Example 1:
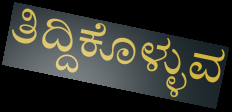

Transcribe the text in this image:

ತಿದ್ದಿಕೊಳ್ಳುವ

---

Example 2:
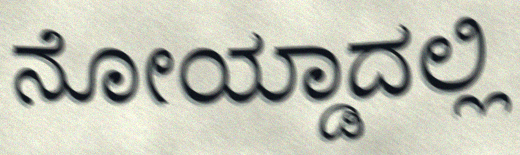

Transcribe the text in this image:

ನೋಯ್ಡಾದಲ್ಲಿ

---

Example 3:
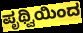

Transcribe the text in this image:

ಪೃಥ್ವಿಯಿಂದ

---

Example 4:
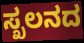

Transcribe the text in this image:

ಸ್ಖಲನದ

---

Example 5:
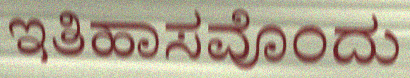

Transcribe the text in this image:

ಇತಿಹಾಸವೊಂದು